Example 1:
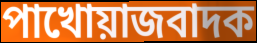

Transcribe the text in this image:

পাখোয়াজবাদক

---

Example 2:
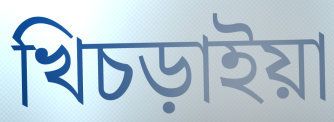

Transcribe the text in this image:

খিচড়াইয়া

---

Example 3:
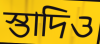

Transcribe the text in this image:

স্তাদিও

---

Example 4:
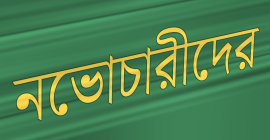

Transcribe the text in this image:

নভোচারীদের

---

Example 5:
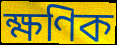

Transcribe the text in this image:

ক্ষণিক